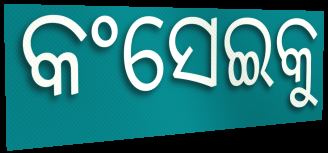
କଂସେଇକୁ